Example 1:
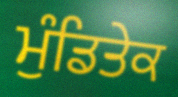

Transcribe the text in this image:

ਮੁੰਡਿਤੇਕ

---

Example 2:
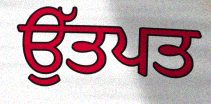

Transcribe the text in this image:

ਉੱਤਪਤ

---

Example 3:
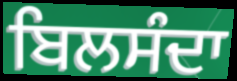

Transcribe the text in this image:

ਬਿਲਸੰਦਾ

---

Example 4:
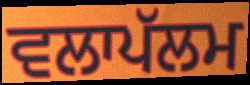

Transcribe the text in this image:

ਵਲਾਪੱਲਮ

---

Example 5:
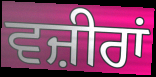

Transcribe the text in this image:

ਵਜ਼ੀਰਾਂ